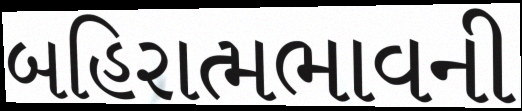
બહિરાત્મભાવની